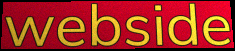
webside